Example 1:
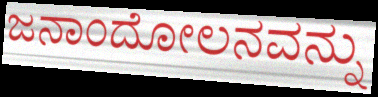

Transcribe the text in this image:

ಜನಾಂದೋಲನವನ್ನು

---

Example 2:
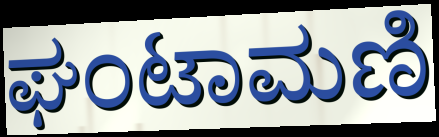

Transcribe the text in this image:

ಘಂಟಾಮಣಿ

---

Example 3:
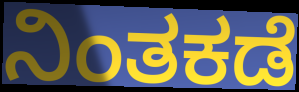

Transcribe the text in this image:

ನಿಂತಕಡೆ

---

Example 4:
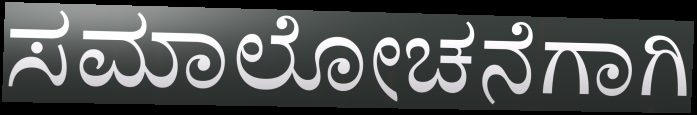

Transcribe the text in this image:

ಸಮಾಲೋಚನೆಗಾಗಿ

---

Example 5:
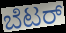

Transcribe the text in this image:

ಬೆಟರ್